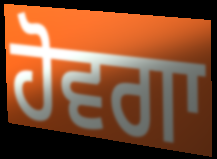
ਹੋਵਗਾ